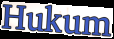
Hukum